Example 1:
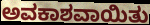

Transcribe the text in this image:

ಅವಕಾಶವಾಯಿತು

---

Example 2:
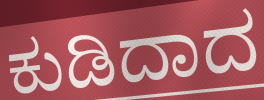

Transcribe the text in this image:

ಕುಡಿದಾದ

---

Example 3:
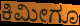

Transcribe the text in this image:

ಕಿಮೀಗೂ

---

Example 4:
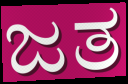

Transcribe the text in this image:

ಜತ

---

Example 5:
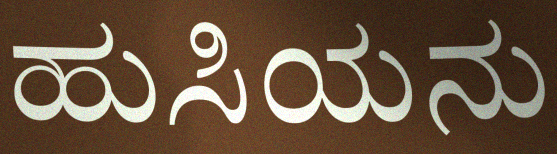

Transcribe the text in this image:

ಹುಸಿಯನು